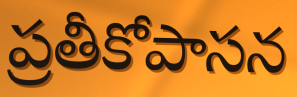
ప్రతీకోపాసన